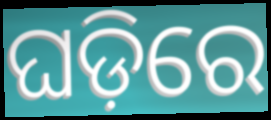
ଘଡ଼ିରେ